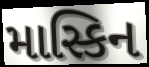
માસ્કિન